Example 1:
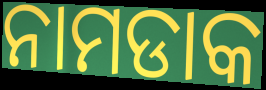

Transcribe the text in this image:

ନାମଡାକ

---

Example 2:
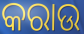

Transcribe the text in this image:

କରାଉ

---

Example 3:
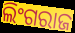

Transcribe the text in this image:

ଲିଂଗରାଜ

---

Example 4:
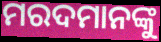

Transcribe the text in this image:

ମରଦମାନଙ୍କୁ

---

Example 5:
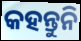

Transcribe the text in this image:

କହନ୍ତୁନି